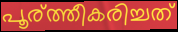
പൂര്ത്തീകരിച്ചത്